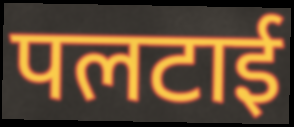
पलटाई